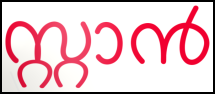
സ്റ്റാൻ